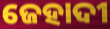
ଜେହାଦୀ